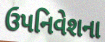
ઉપનિવેશના